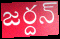
జర్దన్